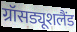
ग्रॉसड्यूशलैंड